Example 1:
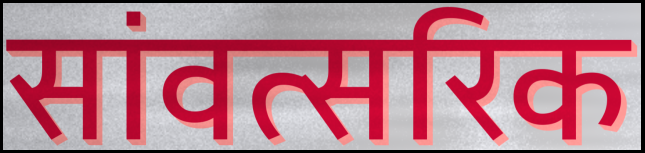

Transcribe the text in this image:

सांवत्सरिक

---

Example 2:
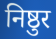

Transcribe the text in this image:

निष्ठुर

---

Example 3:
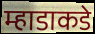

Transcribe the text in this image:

म्हाडाकडे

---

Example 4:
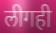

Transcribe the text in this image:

लीगही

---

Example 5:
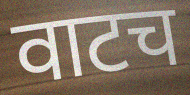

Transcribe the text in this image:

वाटच